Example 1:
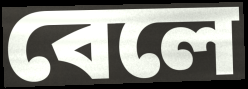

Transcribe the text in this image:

বেলে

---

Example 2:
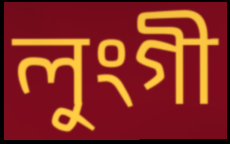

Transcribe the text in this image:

লুংগী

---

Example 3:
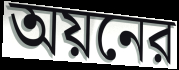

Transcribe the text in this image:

অয়নের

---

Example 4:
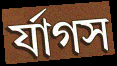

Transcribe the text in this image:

র্যাগস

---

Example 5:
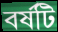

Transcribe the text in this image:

বর্ষটি